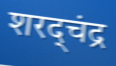
शरद्चंद्र